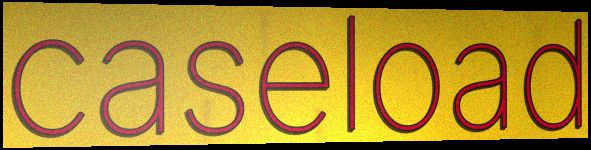
caseload